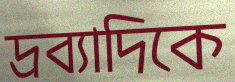
দ্রব্যাদিকে